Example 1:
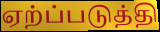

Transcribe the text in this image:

ஏற்ப்படுத்தி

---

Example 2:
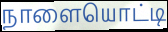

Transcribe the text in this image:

நாளையொட்டி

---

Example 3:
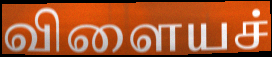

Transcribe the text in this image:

விளையச்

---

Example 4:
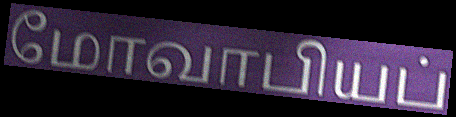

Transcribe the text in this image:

மோவாபியப்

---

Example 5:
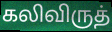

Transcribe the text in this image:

கலிவிருத்